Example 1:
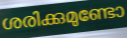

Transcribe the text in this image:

ശരിക്കുമുണ്ടോ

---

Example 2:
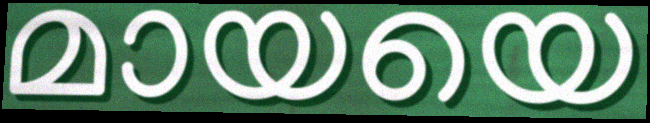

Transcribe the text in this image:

മായയെ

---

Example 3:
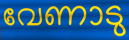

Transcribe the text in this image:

വേണാടു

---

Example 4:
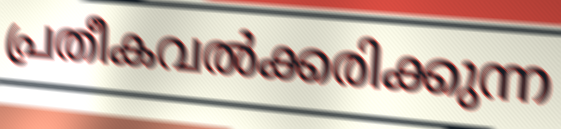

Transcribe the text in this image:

പ്രതീകവൽക്കരിക്കുന്ന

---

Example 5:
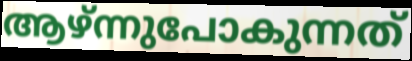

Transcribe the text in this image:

ആഴ്ന്നുപോകുന്നത്